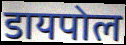
डायपोल